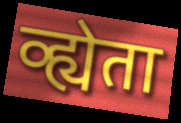
व्ह्येता